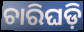
ଚାରିଘଡ଼ି